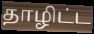
தாழிட்ட